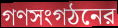
গণসংগঠনের